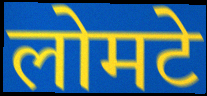
लोमटे